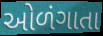
ઓળંગાતા